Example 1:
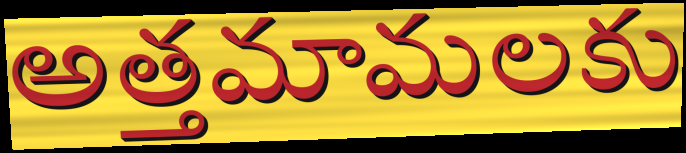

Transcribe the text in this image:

అత్తమామలకు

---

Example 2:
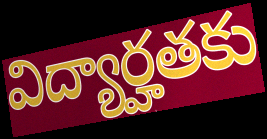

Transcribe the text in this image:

విద్యార్హతకు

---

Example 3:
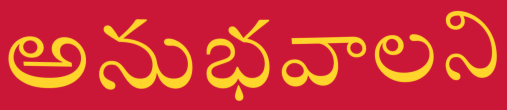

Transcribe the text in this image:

అనుభవాలని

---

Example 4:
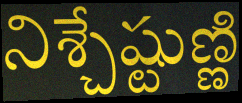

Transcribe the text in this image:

నిశ్చేష్టుణ్ణి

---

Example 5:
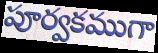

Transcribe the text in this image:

పూర్వకముగా